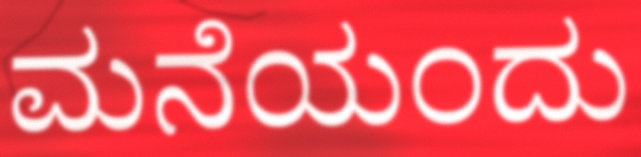
ಮನೆಯಂದು